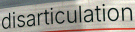
disarticulation